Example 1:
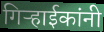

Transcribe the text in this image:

गिऱ्हाईकांनी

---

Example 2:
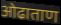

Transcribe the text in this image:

ओढाताण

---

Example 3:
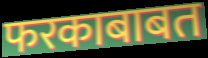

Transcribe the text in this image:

फरकाबाबत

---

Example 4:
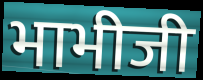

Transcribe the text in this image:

भाभीजी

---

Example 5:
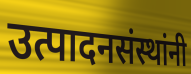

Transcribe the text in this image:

उत्पादनसंस्थांनी